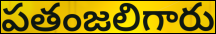
పతంజలిగారు